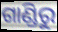
ଗାଣ୍ଡିରୁ